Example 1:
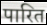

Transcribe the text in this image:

पारित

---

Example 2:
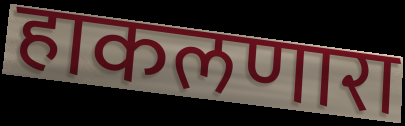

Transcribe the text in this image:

हाकलणारा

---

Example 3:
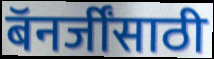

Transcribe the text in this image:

बॅनर्जींसाठी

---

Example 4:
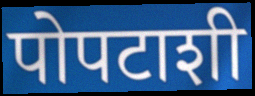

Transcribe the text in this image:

पोपटाशी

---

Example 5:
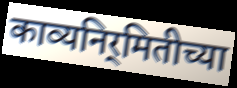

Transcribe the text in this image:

काव्यनिर्मितीच्या